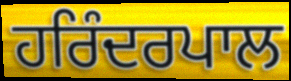
ਹਰਿੰਦਰਪਾਲ